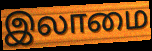
இலாமை